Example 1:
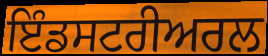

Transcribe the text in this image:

ਇੰਡਸਟਰੀਅਰਲ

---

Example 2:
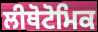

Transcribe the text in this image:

ਲੀਥੋਟੋਮਿਕ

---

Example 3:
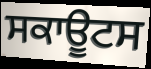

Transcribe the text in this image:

ਸਕਾਊਟਸ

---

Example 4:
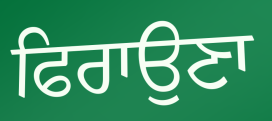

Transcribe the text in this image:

ਫਿਰਾਉਣਾ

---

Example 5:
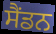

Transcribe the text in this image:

ਸੈਂਡਨ